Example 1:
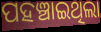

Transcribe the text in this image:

ପହଞ୍ଚାଇଥିଲା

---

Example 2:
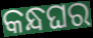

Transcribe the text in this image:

କନ୍ଧଘର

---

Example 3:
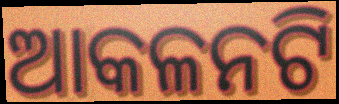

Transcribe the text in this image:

ଆକଳନଟି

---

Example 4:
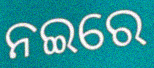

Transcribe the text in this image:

ନଇରେ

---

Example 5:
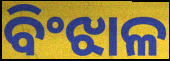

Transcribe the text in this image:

ବିଂଝାଳ